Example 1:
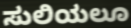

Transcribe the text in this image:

ಸುಲಿಯಲೂ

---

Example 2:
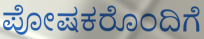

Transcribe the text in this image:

ಪೋಷಕರೊಂದಿಗೆ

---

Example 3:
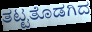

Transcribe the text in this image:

ತಟ್ಟತೊಡಗಿದ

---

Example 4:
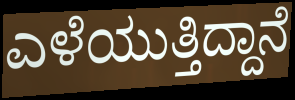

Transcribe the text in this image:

ಎಳೆಯುತ್ತಿದ್ದಾನೆ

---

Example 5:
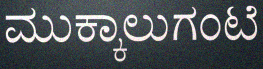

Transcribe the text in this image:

ಮುಕ್ಕಾಲುಗಂಟೆ